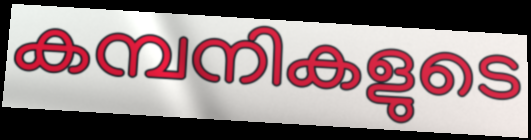
കമ്പനികളുടെ